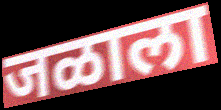
जळाला